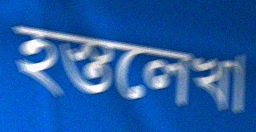
হস্তলেখা